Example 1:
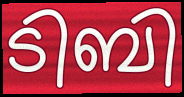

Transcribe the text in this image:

ടിബി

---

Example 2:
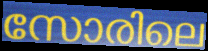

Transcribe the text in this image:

സോരിലെ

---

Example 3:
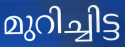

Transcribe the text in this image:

മുറിച്ചിട്ട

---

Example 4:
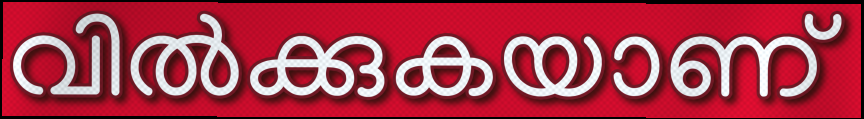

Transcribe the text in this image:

വിൽക്കുകയാണ്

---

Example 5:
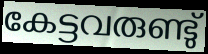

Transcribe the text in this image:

കേട്ടവരുണ്ടു്